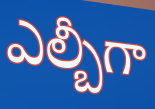
ఎల్బీగా